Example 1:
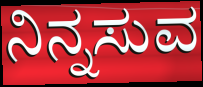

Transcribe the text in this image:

ನಿನ್ನಸುವ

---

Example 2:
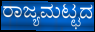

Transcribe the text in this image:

ರಾಜ್ಯಮಟ್ಟದ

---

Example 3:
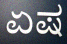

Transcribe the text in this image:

ಏಷ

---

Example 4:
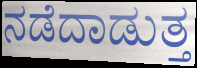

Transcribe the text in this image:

ನಡೆದಾಡುತ್ತ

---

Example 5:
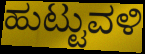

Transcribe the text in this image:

ಹುಟ್ಟುವಳಿ